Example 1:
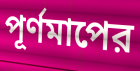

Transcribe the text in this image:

পূর্ণমাপের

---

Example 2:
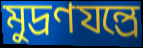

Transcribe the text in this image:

মুদ্রণযন্ত্রে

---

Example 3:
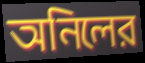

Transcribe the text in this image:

অনিলের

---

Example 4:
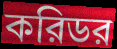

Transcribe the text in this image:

করিডর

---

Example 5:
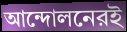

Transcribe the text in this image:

আন্দোলনেরই